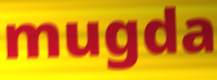
mugda